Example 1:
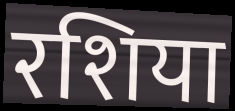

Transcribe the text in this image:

रशिया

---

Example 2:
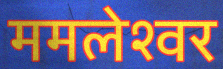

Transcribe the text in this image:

ममलेश्वर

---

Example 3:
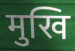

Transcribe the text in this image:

मुखि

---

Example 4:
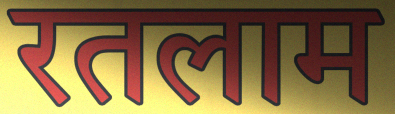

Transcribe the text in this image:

रतलाम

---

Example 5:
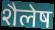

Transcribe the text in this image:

शैलेष